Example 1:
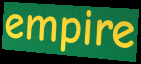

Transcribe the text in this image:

empire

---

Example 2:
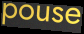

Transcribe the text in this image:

pouse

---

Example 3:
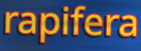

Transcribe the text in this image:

rapifera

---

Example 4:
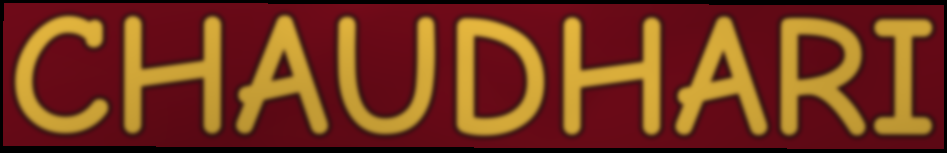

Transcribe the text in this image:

CHAUDHARI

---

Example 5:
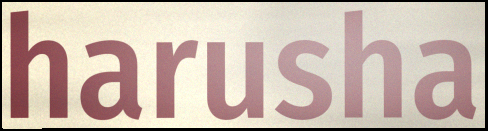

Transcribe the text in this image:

harusha